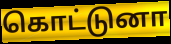
கொட்டுனா